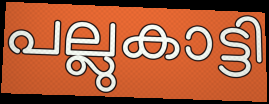
പല്ലുകാട്ടി